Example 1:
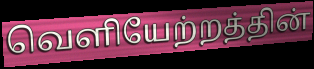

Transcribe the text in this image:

வெளியேற்றத்தின்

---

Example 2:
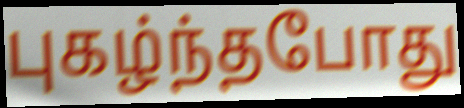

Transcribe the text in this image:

புகழ்ந்தபோது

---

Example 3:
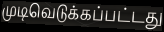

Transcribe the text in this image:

முடிவெடுக்கப்பட்டது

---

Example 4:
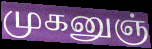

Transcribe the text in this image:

முகனுஞ்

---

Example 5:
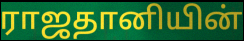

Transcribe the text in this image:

ராஜதானியின்